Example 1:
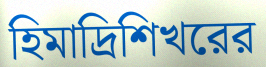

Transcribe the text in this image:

হিমাদ্রিশিখরের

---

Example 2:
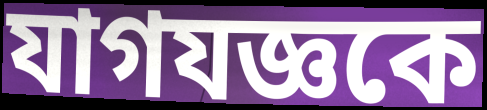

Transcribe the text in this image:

যাগযজ্ঞকে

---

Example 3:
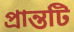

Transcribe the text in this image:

প্রান্তটি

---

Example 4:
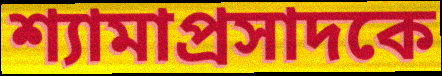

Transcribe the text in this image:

শ্যামাপ্রসাদকে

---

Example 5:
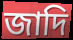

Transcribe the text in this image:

জাদি